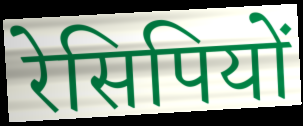
रेसिपियों